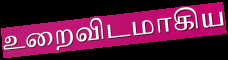
உறைவிடமாகிய